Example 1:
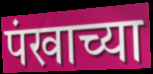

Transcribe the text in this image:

पंखाच्या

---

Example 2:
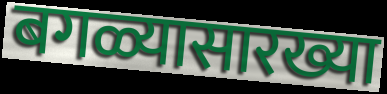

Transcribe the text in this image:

बगळ्यासारख्या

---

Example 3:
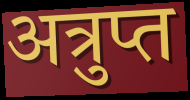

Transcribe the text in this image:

अत्रुप्त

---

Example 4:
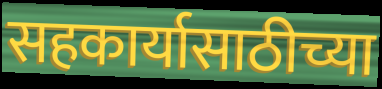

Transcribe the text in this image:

सहकार्यासाठीच्या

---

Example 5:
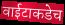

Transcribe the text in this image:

वाईटाकडेच